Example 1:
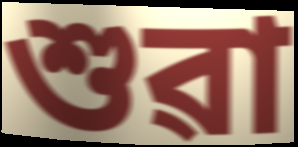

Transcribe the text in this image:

শুৱা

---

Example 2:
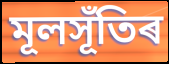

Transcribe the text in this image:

মূলসূঁতিৰ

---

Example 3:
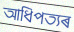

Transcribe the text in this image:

আধিপত্যৰ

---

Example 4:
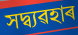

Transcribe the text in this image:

সদ্ব্যৱহাৰ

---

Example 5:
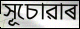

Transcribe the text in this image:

সূচোৱাৰ